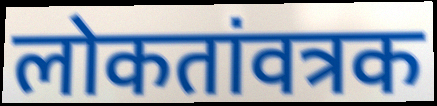
लोकतांवत्रक